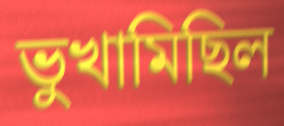
ভুখামিছিল